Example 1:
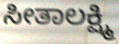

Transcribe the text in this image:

ಸೀತಾಲಕ್ಷ್ಮಿ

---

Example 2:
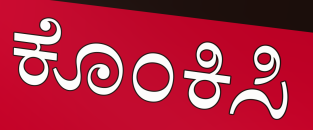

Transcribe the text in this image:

ಕೊಂಕಿಸಿ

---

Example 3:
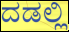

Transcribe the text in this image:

ದಡಲ್ಲಿ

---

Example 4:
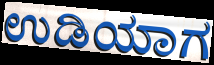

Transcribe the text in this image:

ಉಡಿಯಾಗ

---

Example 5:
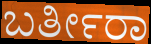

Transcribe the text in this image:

ಬರ್ತೀರಾ